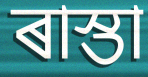
ৰাস্তা